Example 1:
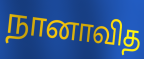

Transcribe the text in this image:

நானாவித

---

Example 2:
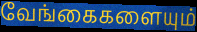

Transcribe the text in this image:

வேங்கைகளையும்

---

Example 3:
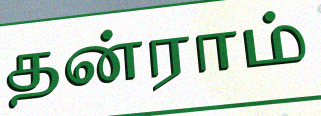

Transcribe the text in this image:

தன்ராம்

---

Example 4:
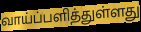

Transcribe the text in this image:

வாய்ப்பளித்துள்ளது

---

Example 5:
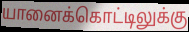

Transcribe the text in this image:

யானைக்கொட்டிலுக்கு